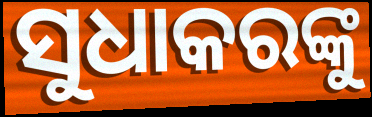
ସୁଧାକରଙ୍କୁ